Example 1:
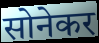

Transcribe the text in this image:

सोनेकर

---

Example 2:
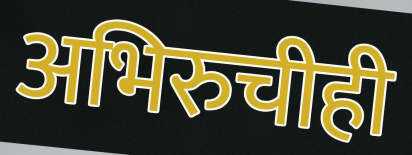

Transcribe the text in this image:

अभिरुचीही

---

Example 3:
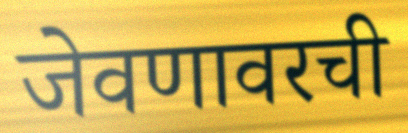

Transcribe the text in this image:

जेवणावरची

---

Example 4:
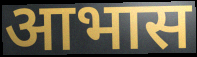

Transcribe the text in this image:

आभास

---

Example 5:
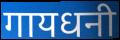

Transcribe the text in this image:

गायधनी